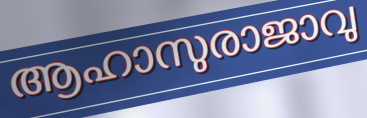
ആഹാസുരാജാവു